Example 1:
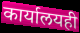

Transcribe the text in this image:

कार्यालयही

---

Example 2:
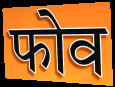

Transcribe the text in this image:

फोव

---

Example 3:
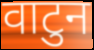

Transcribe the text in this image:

वाटुन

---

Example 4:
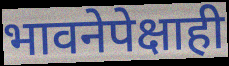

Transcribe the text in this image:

भावनेपेक्षाही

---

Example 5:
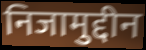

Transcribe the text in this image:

निजामुद्दीन